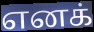
எனக்